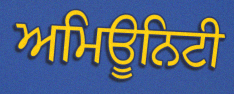
ਅਮਿਊਨਿਟੀ